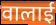
वालाई